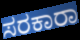
ಸರಕಾರಾ